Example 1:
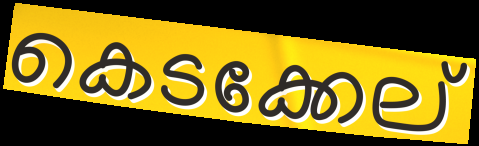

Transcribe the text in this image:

കെടക്കേല്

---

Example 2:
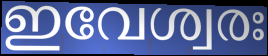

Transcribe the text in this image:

ഇവേശ്വരഃ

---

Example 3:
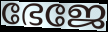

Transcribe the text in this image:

ഭേജേ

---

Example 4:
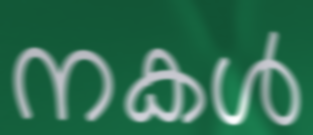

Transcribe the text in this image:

നകൾ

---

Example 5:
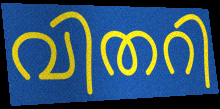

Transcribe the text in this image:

വിതറി